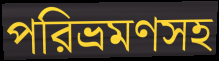
পরিভ্রমণসহ